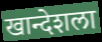
खान्देशला